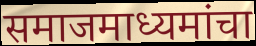
समाजमाध्यमांचा